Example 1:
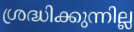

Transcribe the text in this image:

ശ്രദ്ധിക്കുന്നില്ല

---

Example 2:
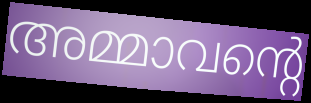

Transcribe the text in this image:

അമ്മാവന്റെ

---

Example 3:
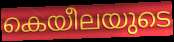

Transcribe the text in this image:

കെയീലയുടെ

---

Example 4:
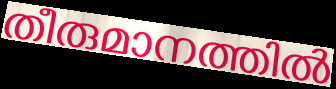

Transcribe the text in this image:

തീരുമാനത്തിൽ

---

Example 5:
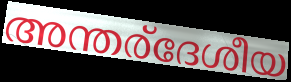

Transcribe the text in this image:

അന്തര്ദേശീയ